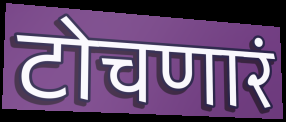
टोचणारं